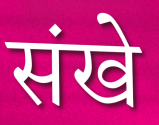
संखे